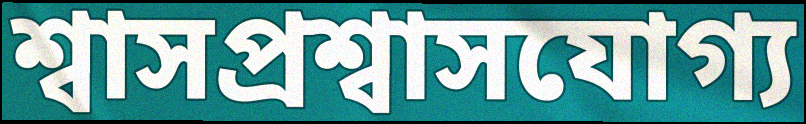
শ্বাসপ্রশ্বাসযোগ্য